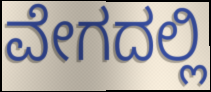
ವೇಗದಲ್ಲಿ